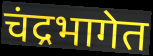
चंद्रभागेत